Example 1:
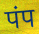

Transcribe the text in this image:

पंप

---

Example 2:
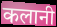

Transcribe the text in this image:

कलानी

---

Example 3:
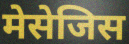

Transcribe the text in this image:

मेसेजिस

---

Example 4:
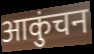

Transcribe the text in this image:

आकुंचन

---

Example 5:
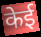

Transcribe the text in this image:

केई